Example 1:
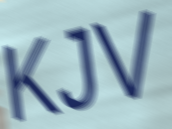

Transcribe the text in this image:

KJV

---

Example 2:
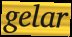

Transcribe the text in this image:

gelar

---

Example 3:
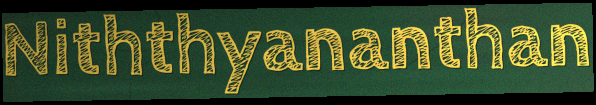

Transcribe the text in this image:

Niththyananthan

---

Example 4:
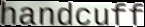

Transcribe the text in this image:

handcuff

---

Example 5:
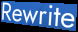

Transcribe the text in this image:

Rewrite